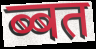
ब्बत